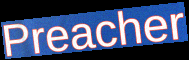
Preacher